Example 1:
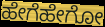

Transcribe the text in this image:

ಹೇಗೆಹೇಗೋ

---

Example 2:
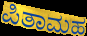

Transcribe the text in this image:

ಪಿತಾಮಹ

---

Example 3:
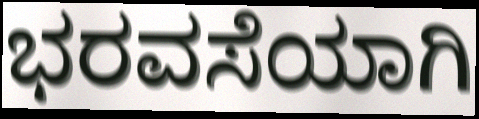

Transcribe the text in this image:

ಭರವಸೆಯಾಗಿ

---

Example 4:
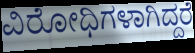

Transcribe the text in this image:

ವಿರೋಧಿಗಳಾಗಿದ್ದರೆ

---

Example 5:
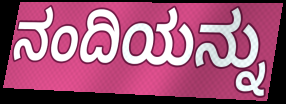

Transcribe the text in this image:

ನಂದಿಯನ್ನು